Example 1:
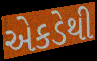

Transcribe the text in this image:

એકડેથી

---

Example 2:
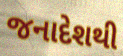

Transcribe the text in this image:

જનાદેશથી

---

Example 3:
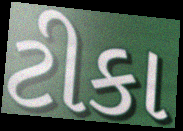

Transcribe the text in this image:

ટીકા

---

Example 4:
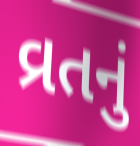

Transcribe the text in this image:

વ્રતનું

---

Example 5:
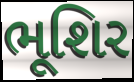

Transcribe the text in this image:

ભૂશિર